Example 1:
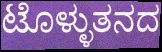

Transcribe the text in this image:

ಟೊಳ್ಳುತನದ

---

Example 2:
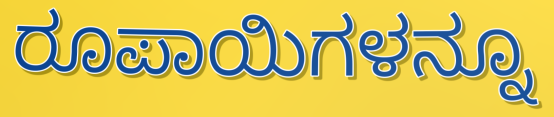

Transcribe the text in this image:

ರೂಪಾಯಿಗಳನ್ನೂ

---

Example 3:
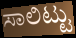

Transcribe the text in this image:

ಸಾಲಿಟ್ಟು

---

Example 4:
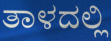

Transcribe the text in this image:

ತಾಳದಲ್ಲಿ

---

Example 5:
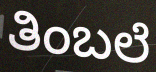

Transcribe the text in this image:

ತಿಂಬಲೆ